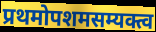
प्रथमोपशमसम्यक्त्व